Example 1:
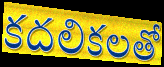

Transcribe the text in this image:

కదలికలతో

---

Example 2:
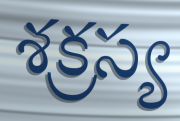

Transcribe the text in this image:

శక్రస్య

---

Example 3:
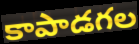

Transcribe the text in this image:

కాపాడగల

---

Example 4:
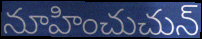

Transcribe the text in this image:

నూహించుచున్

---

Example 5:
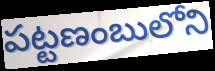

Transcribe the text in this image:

పట్టణంబులోని